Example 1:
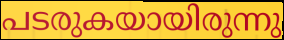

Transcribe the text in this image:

പടരുകയായിരുന്നു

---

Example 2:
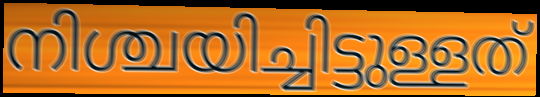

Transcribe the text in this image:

നിശ്ചയിച്ചിട്ടുള്ളത്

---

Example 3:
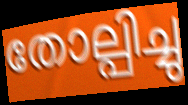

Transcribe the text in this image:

തോല്പിച്ചു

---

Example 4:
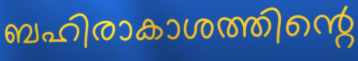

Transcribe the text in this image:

ബഹിരാകാശത്തിന്റെ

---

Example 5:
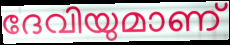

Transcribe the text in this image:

ദേവിയുമാണ്